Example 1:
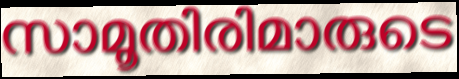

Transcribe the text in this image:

സാമൂതിരിമാരുടെ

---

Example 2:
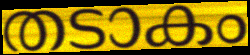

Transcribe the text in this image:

തടാകം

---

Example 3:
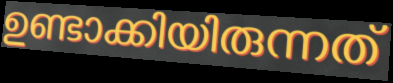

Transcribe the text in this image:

ഉണ്ടാക്കിയിരുന്നത്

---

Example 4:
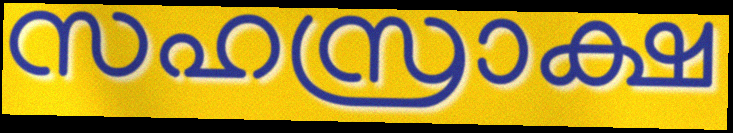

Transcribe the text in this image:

സഹസ്രാക്ഷ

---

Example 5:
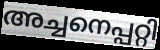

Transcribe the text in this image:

അച്ചനെപ്പറ്റി